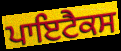
ਪਾਇਟੈਕਸ